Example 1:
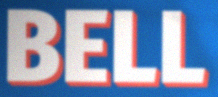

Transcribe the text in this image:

BELL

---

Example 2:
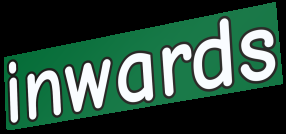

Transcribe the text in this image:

inwards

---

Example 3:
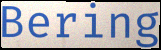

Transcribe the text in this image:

Bering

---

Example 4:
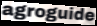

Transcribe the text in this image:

agroguide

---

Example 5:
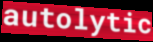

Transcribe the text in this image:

autolytic